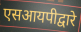
एसआयपीद्वारे